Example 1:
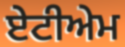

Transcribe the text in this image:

ਏਟੀਅੇਮ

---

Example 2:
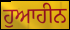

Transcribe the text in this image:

ਹੁਆਹੀਨ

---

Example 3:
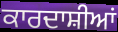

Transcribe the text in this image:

ਕਾਰਦਾਸ਼ੀਆਂ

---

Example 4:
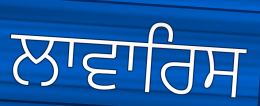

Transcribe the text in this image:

ਲਾਵਾਰਿਸ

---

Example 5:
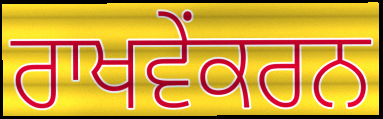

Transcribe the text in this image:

ਰਾਖਵੇਂਕਰਨ